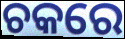
ଚକରେ